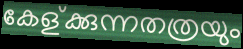
കേള്ക്കുന്നതത്രയും